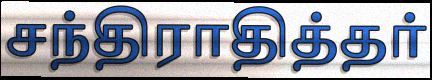
சந்திராதித்தர்